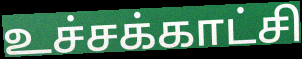
உச்சக்காட்சி